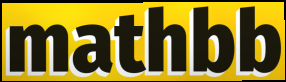
mathbb